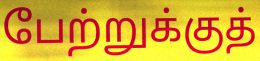
பேற்றுக்குத்